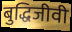
बुद्धिजीवी